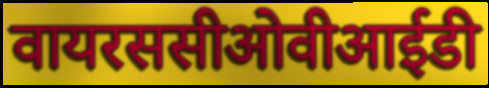
वायरससीओवीआईडी